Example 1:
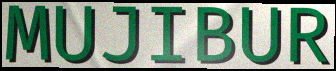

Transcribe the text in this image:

MUJIBUR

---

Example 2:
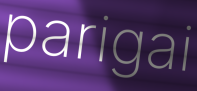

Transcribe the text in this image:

parigai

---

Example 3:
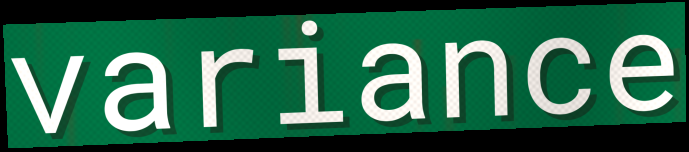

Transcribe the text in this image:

variance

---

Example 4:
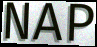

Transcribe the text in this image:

NAP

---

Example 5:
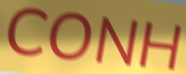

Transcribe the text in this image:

CONH